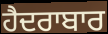
ਹੈਦਰਾਬਾਰ